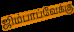
ஜிம்பாப்வேக்கு